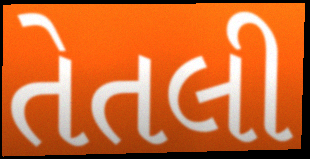
તેતલી